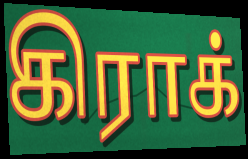
கிராக்